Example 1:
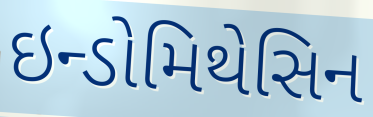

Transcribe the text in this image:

ઇન્ડોમિથેસિન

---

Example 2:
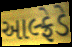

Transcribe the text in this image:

આલ્ફ્રેડે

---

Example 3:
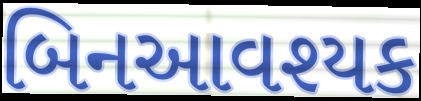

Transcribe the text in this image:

બિનઆવશ્યક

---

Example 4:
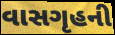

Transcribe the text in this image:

વાસગૃહની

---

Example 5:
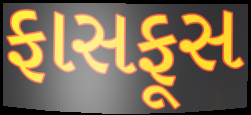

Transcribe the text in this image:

ફાસફૂસ